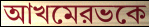
আখমেরভকে